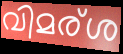
വിമര്ശ